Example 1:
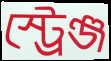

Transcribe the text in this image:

স্ট্রেঞ্জ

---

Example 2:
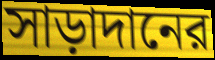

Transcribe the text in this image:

সাড়াদানের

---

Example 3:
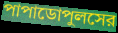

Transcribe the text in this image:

পাপাডোপুলসের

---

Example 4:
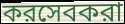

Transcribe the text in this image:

করসেবকরা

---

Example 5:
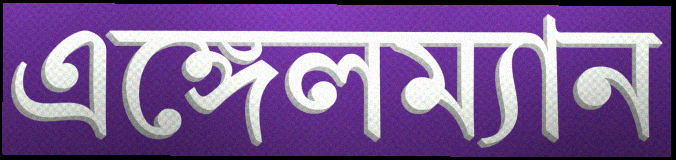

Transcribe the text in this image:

এঙ্গেলম্যান